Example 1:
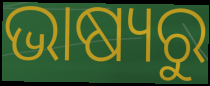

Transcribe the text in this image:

ଭାଷ୍ୟରୁ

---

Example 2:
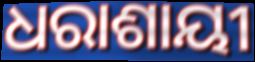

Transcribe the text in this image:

ଧରାଶାୟୀ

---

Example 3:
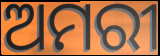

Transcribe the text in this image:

ଅମରୀ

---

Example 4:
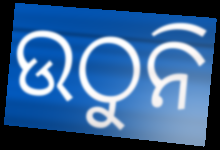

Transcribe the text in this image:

ଉଠୁନି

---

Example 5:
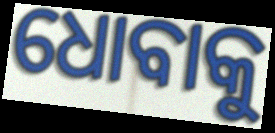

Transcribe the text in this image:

ଧୋବାକୁ